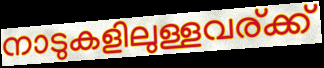
നാടുകളിലുള്ളവര്ക്ക്